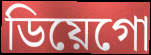
ডিয়েগো